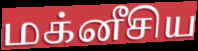
மக்னீசிய